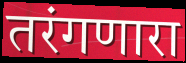
तरंगणारा